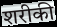
शरीकी